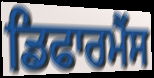
ਡਿਫਾਰਮੈਂਸ